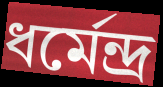
ধৰ্মেন্দ্ৰ